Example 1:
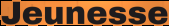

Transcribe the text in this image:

Jeunesse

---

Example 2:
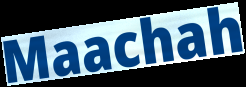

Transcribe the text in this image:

Maachah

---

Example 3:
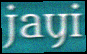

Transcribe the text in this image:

jayi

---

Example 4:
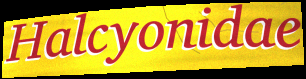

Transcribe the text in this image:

Halcyonidae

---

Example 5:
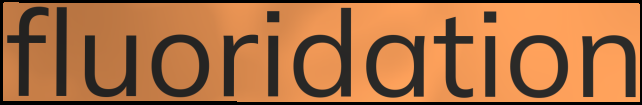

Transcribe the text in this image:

fluoridation